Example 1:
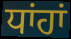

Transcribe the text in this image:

ਧਾਂਹਾਂ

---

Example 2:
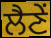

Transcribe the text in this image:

ਲੈਣੇਂ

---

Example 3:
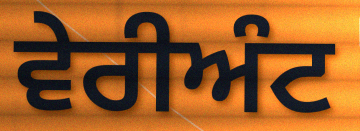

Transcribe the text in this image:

ਵੇਰੀਅੰਟ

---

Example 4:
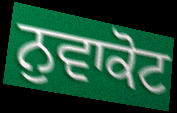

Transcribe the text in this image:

ਨੁਵਾਕੋਟ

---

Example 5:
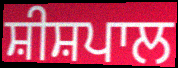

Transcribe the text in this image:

ਸ਼ੀਸ਼ਪਾਲ